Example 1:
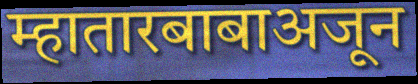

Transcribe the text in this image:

म्हातारबाबाअजून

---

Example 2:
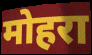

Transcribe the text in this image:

मोहरा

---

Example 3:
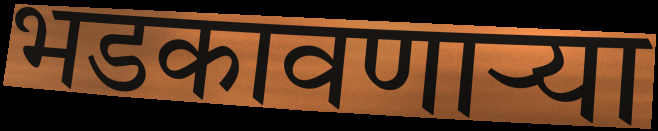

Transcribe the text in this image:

भडकावणाऱ्या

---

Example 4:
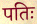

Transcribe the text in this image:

पतिः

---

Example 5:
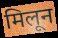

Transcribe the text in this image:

मिलून